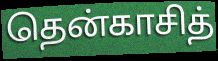
தென்காசித்